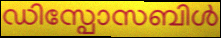
ഡിസ്പോസബിൾ